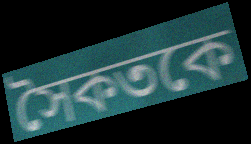
সৈকতকে